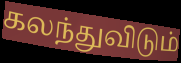
கலந்துவிடும்